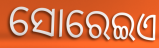
ସୋରେଇଏ